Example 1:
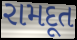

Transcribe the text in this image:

રામદૂત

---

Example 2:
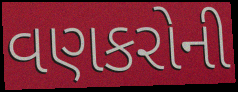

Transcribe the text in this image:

વણકરોની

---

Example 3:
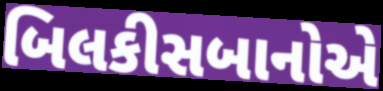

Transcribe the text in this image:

બિલકીસબાનોએ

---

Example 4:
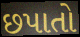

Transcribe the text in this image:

છપાતો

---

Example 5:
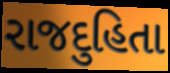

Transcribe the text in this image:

રાજદુહિતા